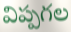
విప్పగల